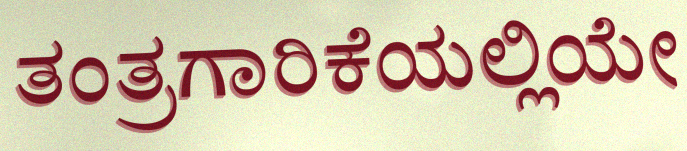
ತಂತ್ರಗಾರಿಕೆಯಲ್ಲಿಯೇ